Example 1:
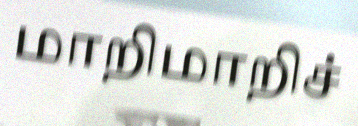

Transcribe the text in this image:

மாறிமாறிச்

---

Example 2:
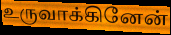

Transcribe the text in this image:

உருவாக்கினேன்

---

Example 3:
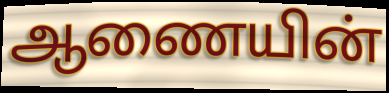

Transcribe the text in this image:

ஆணையின்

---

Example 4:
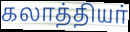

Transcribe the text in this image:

கலாத்தியர்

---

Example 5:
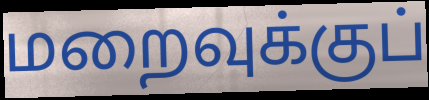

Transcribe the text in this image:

மறைவுக்குப்